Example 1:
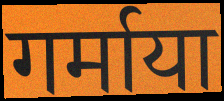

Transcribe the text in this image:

गर्माया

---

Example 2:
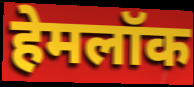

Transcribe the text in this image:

हेमलॉक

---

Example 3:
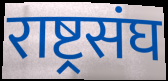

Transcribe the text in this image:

राष्ट्रसंघ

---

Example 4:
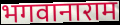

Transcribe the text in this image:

भगवानाराम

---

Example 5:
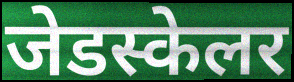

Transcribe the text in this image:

जेडस्केलर